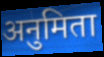
अनुमिता